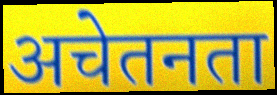
अचेतनता